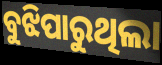
ବୁଝିପାରୁଥିଲା